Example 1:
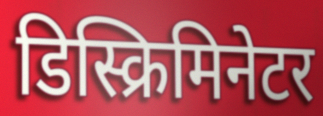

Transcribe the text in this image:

डिस्क्रिमिनेटर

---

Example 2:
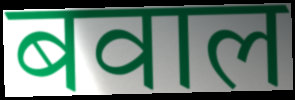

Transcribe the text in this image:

बवाल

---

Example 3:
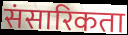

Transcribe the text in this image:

संसारिकता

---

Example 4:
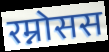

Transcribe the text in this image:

रम्नोसस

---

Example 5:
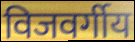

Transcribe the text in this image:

विजवर्गीय